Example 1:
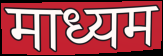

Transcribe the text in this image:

माध्यम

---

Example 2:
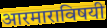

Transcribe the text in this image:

आरमाराविषयी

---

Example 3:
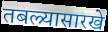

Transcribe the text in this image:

तबल्यासारखे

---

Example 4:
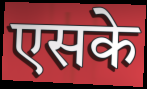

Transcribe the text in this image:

एसके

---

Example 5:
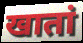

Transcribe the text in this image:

खातां